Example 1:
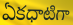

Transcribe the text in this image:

ఏకధాటిగా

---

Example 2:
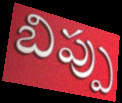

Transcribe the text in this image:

బిప్పు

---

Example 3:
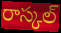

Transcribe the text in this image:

రాస్కల్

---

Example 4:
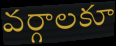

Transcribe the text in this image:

వర్గాలకూ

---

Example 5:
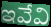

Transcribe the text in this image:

ఇవేవి